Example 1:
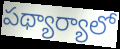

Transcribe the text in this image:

పథ్యార్యాలో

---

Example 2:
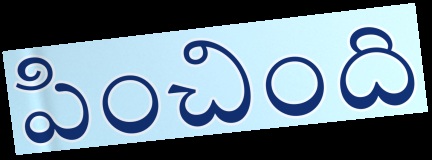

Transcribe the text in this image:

పించింది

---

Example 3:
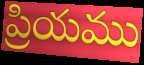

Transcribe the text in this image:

ప్రియము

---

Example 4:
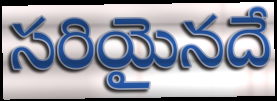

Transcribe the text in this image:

సరియైనదే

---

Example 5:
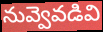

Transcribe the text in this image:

నువ్వెవడివి